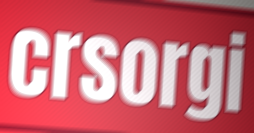
crsorgi